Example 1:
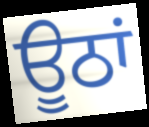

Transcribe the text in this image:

ਊਠਾਂ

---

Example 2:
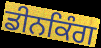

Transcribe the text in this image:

ਡੀਨਕਿੰਗ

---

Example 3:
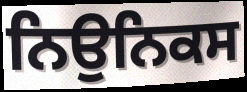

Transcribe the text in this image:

ਨਿਉਨਿਕਸ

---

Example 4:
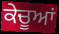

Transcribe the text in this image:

ਕੇਚੂਆਂ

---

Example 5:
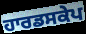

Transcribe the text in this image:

ਹਾਰਡਸਕੇਪ